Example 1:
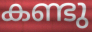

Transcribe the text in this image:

കണ്ടു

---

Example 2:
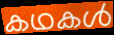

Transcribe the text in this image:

കഥകൾ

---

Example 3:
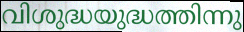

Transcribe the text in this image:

വിശുദ്ധയുദ്ധത്തിന്നു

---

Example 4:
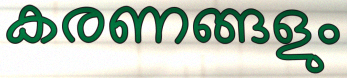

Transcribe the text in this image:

കരണങ്ങളും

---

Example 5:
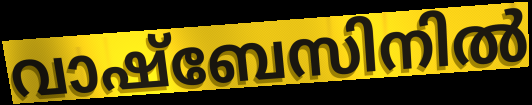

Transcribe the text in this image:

വാഷ്ബേസിനിൽ